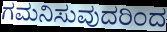
ಗಮನಿಸುವುದರಿಂದ